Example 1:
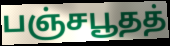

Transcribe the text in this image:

பஞ்சபூதத்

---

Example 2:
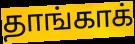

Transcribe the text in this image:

தாங்காக்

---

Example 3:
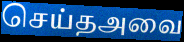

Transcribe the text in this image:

செய்தஅவை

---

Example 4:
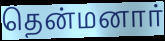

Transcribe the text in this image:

தென்மனார்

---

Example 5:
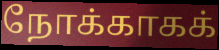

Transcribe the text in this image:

நோக்காகக்